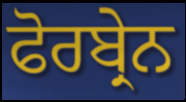
ਫੋਰਬ੍ਰੇਨ